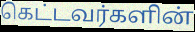
கெட்டவர்களின்